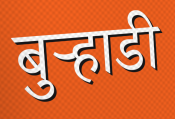
बुऱ्हाडी